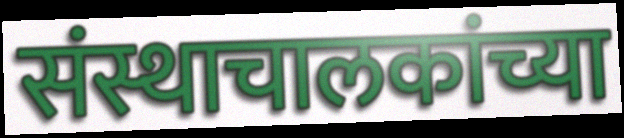
संस्थाचालकांच्या